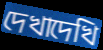
দেখাদেখি